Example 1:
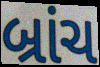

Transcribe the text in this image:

બ્રાંચ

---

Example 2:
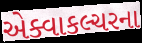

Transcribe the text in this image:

એક્વાકલ્ચરના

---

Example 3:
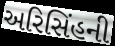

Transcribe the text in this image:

અરિસિંહની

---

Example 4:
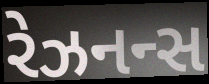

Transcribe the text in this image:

રેઝનન્સ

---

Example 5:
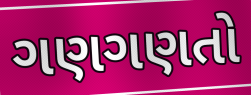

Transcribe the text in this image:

ગણગણતો